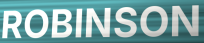
ROBINSON